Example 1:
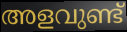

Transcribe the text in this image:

അളവുണ്ട്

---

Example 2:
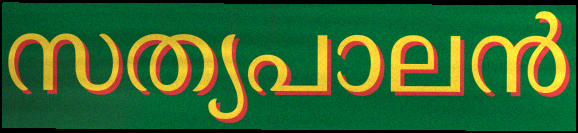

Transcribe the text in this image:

സത്യപാലൻ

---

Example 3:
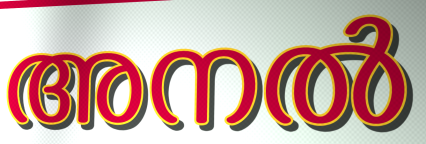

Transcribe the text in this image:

അനൽ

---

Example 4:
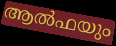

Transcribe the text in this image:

ആൽഫയും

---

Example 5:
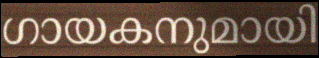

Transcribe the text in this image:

ഗായകനുമായി